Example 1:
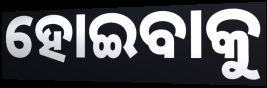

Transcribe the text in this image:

ହୋଇବାକୁ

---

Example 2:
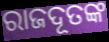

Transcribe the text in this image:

ରାଜଦୂତଙ୍କ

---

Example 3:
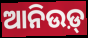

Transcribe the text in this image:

ଆନିଉଡ଼୍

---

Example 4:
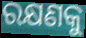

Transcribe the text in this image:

ରକ୍ଷଣକୁ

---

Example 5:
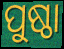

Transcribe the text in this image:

ପୁଷ୍ଠା